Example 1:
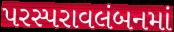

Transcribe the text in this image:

પરસ્પરાવલંબનમાં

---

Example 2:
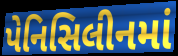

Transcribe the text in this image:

પેનિસિલીનમાં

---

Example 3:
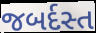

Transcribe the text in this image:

જબર્દસ્ત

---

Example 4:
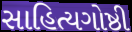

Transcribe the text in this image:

સાહિત્યગોષ્ઠી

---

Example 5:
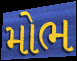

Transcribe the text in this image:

મોભ